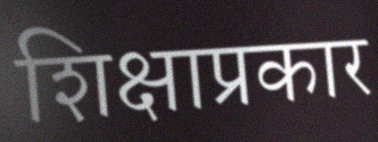
शिक्षाप्रकार